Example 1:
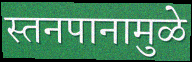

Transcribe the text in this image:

स्तनपानामुळे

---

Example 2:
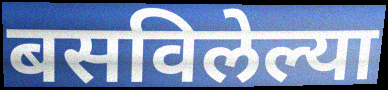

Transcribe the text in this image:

बसविलेल्या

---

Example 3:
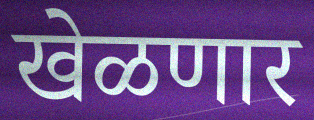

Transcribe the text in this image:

खेळणार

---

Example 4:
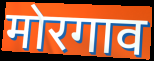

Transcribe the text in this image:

मोरगाव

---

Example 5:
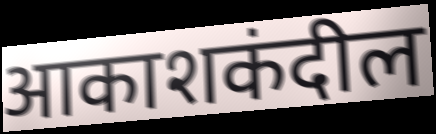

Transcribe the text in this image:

आकाशकंदील